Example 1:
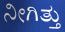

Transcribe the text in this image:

ನೀಗಿತ್ತು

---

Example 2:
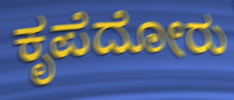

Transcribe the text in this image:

ಕೃಪೆದೋರು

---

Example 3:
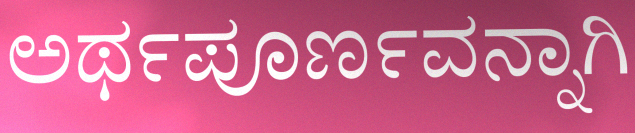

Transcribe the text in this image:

ಅರ್ಥಪೂರ್ಣವನ್ನಾಗಿ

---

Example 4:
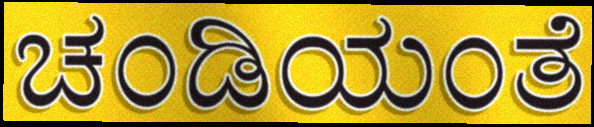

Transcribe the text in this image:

ಚಂಡಿಯಂತೆ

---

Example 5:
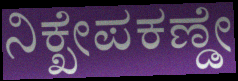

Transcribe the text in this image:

ನಿಕ್ಖೇಪಕಣ್ಡೇ